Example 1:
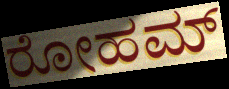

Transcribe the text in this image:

ರೋಹಮ್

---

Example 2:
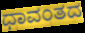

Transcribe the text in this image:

ಧಾವಂತದ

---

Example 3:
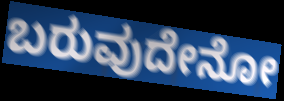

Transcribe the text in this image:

ಬರುವುದೇನೋ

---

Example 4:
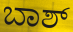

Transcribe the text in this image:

ಬಾಶ್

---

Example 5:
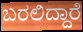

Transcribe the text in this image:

ಬರಲಿದ್ದಾರೆ